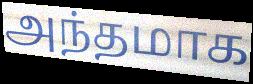
அந்தமாக